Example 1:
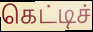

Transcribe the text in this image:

கெட்டிச்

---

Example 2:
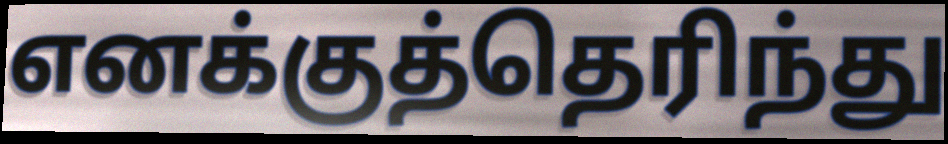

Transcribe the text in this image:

எனக்குத்தெரிந்து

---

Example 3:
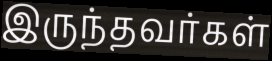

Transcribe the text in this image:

இருந்தவர்கள்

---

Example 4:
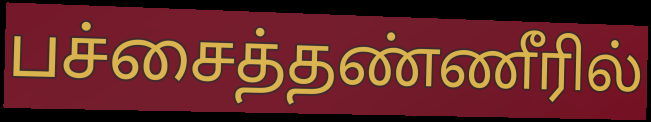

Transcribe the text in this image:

பச்சைத்தண்ணீரில்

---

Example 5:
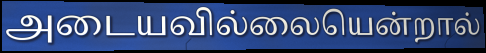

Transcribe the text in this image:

அடையவில்லையென்றால்